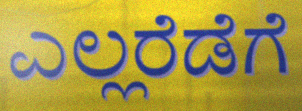
ಎಲ್ಲರೆಡೆಗೆ